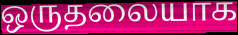
ஒருதலையாக